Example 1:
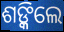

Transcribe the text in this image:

ଶଙ୍କିଲେ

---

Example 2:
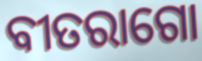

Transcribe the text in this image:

ବୀତରାଗୋ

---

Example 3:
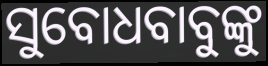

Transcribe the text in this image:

ସୁବୋଧବାବୁଙ୍କୁ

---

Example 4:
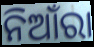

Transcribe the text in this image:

ନିଆଁରା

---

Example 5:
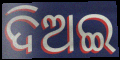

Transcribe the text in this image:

ଦିଅଇ